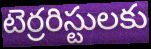
టెర్రరిస్టులకు